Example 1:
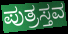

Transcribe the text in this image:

ಪುತ್ರಸ್ತವ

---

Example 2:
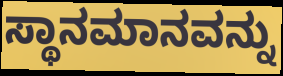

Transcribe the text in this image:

ಸ್ಥಾನಮಾನವನ್ನು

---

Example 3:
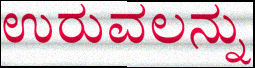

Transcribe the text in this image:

ಉರುವಲನ್ನು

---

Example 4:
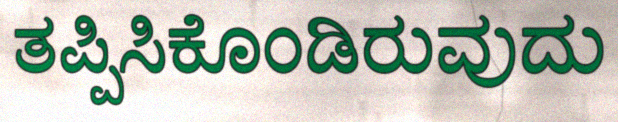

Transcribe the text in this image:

ತಪ್ಪಿಸಿಕೊಂಡಿರುವುದು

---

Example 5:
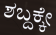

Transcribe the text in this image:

ಶಬ್ದಕ್ಕೇ